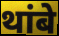
थांबे